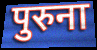
पुरुना